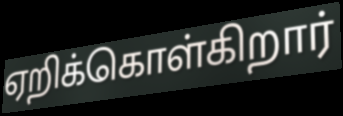
ஏறிக்கொள்கிறார்